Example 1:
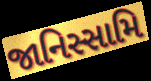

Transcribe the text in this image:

જાનિસ્સામિ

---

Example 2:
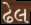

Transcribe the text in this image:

ઢેલ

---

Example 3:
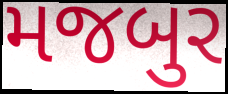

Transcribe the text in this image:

મજબુર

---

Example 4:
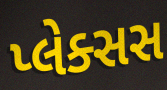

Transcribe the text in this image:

પ્લેક્સસ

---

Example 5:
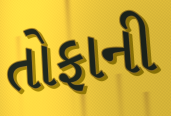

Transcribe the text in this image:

તોફાની